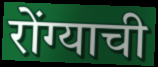
रोंग्याची